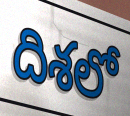
దిశలో